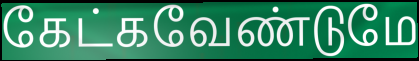
கேட்கவேண்டுமே